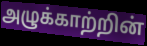
அழுக்காற்றின்